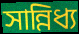
সান্নিধ্য